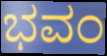
ಭವಂ